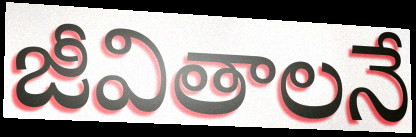
జీవితాలనే